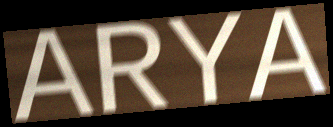
ARYA